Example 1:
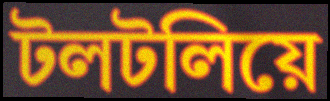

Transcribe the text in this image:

টলটলিয়ে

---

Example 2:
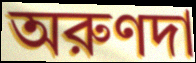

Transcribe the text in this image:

অরুণদা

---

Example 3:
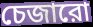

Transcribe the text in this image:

চেজারো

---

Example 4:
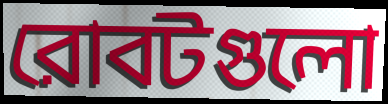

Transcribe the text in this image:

রোবটগুলো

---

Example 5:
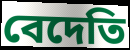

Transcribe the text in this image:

বেদেতি